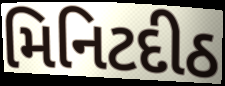
મિનિટદીઠ